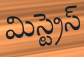
మిస్ట్రెస్